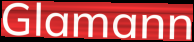
Glamann